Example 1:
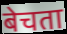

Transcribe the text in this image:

बेचता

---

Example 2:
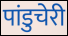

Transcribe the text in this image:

पांडुचेरी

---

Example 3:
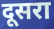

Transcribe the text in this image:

दूसरा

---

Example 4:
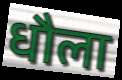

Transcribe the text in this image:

धौला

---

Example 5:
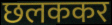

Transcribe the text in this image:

छलककर